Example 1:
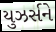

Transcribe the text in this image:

યુઝર્સને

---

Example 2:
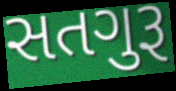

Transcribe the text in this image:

સતગુરૂ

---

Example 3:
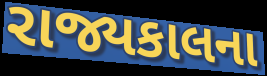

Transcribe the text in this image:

રાજ્યકાલના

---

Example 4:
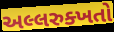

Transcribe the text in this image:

અલ્લરુક્ખતો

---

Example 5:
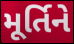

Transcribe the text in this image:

મૂર્તિને